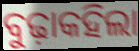
ବୁଢ଼ାକହିଲା